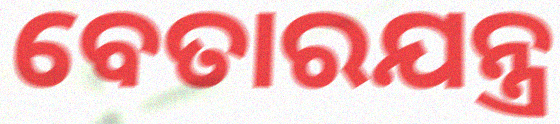
ବେତାରଯନ୍ତ୍ର